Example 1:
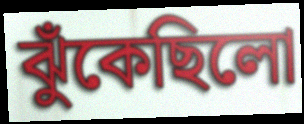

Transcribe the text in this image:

ঝুঁকেছিলো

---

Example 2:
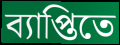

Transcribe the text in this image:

ব্যাপ্তিতে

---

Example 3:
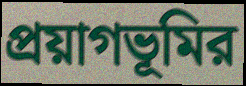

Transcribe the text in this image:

প্রয়াগভূমির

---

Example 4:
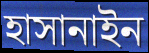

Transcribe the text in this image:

হাসানাইন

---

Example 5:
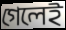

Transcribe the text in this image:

গেলেই